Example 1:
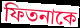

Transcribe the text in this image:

ফিতনাকে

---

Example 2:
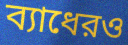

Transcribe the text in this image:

ব্যাধেরও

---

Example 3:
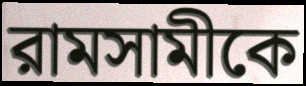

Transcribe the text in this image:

রামসামীকে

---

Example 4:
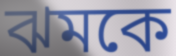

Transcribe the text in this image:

ঝমকে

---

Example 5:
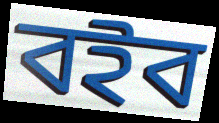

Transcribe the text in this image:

বইব